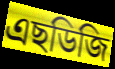
এছডিজি